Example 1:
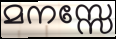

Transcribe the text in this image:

മനസ്സേ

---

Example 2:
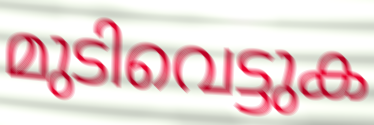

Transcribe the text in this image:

മുടിവെട്ടുക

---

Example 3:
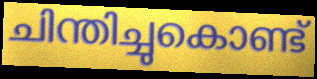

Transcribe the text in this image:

ചിന്തിച്ചുകൊണ്ട്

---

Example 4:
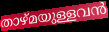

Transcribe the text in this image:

താഴ്മയുള്ളവൻ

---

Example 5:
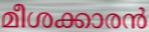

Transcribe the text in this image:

മീശക്കാരൻ